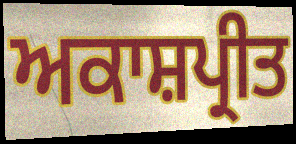
ਅਕਾਸ਼ਪ੍ਰੀਤ